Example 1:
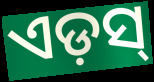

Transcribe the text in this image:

ଏଡ଼ସ୍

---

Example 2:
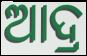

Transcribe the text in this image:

ଆଦ୍ର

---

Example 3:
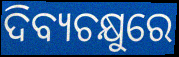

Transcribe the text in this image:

ଦିବ୍ୟଚକ୍ଷୁରେ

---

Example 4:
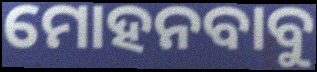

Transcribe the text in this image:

ମୋହନବାବୁ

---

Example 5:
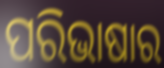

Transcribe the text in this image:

ପରିଭାଷାର